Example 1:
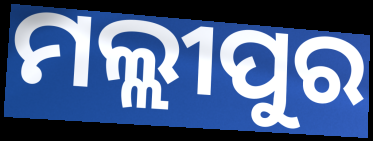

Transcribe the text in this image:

ମଲ୍ଲୀପୁର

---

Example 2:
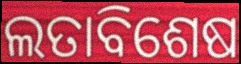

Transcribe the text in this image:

ଲତାବିଶେଷ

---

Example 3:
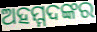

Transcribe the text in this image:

ଅହମ୍ମଦଙ୍କର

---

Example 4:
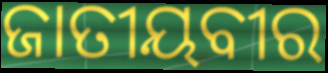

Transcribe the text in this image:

ଜାତୀୟବୀର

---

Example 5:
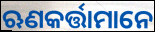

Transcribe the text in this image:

ଋଣକର୍ତ୍ତାମାନେ